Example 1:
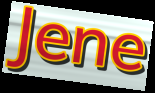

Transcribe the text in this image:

Jene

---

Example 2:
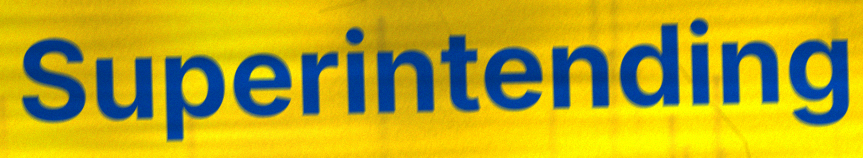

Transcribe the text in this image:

Superintending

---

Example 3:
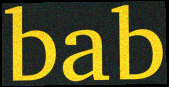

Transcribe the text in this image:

bab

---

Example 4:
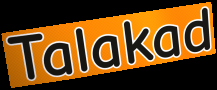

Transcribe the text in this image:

Talakad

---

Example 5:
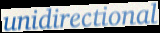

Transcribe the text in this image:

unidirectional